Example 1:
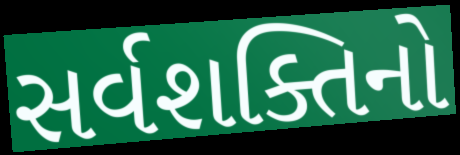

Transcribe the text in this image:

સર્વશક્તિનો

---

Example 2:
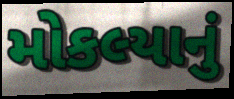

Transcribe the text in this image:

મોકલ્યાનું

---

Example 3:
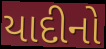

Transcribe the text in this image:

યાદીનો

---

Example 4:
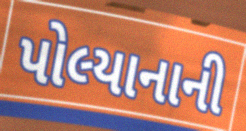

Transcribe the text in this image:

પોલ્યાનાની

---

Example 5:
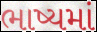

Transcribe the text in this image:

ભાષ્યમાં